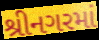
શ્રીનગરમાં